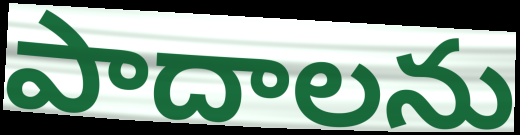
పాదాలను